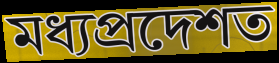
মধ্যপ্ৰদেশত